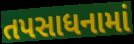
તપસાધનામાં